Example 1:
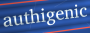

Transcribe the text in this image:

authigenic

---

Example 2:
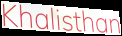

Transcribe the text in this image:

Khalisthan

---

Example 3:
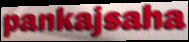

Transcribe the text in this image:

pankajsaha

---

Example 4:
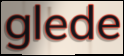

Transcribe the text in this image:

glede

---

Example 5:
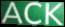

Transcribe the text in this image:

ACK